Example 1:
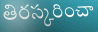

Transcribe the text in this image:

తిరస్కరించా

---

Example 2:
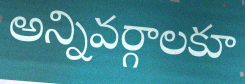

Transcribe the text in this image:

అన్నివర్గాలకూ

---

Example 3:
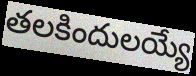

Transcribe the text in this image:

తలకిందులయ్యే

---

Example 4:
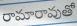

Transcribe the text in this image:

రామారావుతో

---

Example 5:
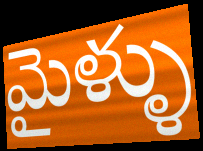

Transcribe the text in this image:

మైళ్ళు